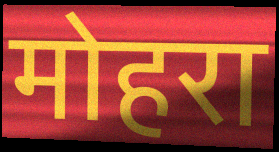
मोहरा